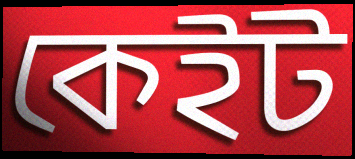
কেইট